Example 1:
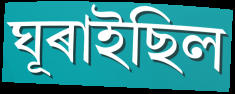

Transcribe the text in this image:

ঘূৰাইছিল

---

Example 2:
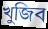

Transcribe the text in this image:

খুজিব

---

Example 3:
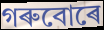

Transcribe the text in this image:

গৰুবোৰে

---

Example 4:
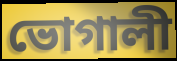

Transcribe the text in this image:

ভোগালী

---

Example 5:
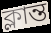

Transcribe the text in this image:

ক্লান্ত